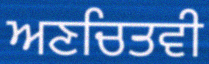
ਅਣਚਿਤਵੀ